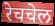
रेचचेल